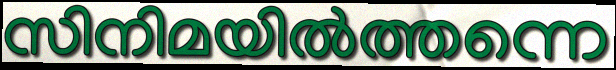
സിനിമയിൽത്തന്നെ